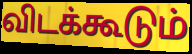
விடக்கூடும்